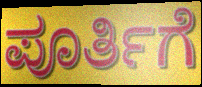
ಪೂರ್ತಿಗೆ